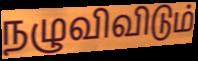
நழுவிவிடும்